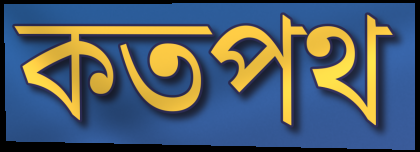
কতপথ